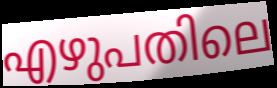
എഴുപതിലെ